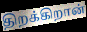
திறக்கிறான்